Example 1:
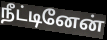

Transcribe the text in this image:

நீட்டினேன்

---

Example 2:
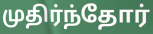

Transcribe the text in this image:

முதிர்ந்தோர்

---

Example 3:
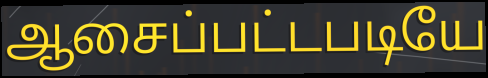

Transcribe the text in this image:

ஆசைப்பட்டபடியே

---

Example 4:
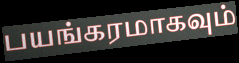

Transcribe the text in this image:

பயங்கரமாகவும்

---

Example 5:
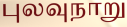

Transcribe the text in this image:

புலவுநாறு